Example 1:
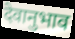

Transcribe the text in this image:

देवानुभाव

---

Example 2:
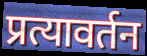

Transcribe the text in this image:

प्रत्यावर्तन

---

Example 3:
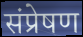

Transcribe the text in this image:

संप्रेषण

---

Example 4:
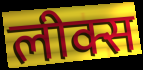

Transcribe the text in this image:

लीक्स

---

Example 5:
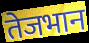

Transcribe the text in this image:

तेजभान